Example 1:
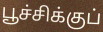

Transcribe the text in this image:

பூச்சிக்குப்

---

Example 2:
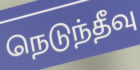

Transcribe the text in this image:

நெடுந்தீவு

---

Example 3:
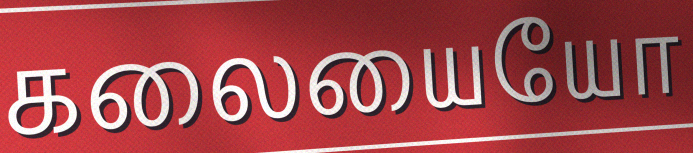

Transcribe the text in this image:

கலையையோ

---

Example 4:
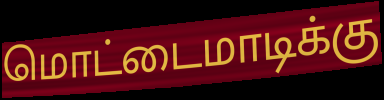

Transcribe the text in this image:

மொட்டைமாடிக்கு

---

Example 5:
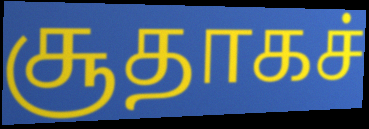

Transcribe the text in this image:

சூதாகச்